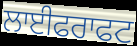
ਲਾਈਫਰਾਫਟ